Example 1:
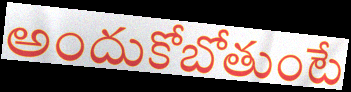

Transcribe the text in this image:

అందుకోబోతుంటే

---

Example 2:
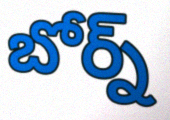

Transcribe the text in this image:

బోర్న్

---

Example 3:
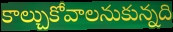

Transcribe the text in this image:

కాల్చుకోవాలనుకున్నది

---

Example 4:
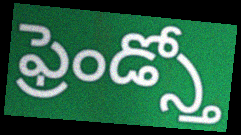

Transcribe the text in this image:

ఫ్రెండ్స్తో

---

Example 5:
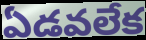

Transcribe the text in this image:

ఏడవలేక